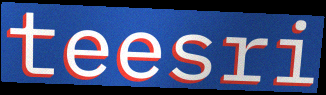
teesri